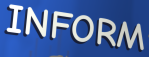
INFORM